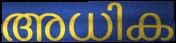
അധിക